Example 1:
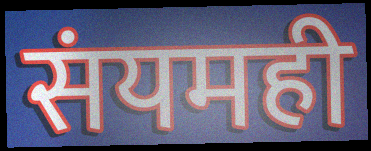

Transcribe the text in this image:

संयमही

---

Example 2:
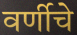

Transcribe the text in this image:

वर्णीचे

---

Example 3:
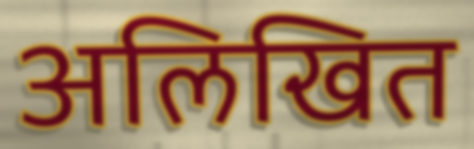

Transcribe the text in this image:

अलिखित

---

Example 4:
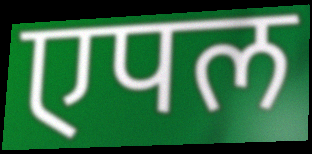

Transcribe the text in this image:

एपल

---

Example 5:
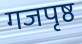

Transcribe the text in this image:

गजपृष्ठ